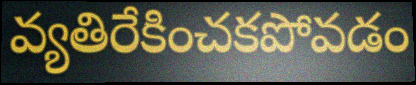
వ్యతిరేకించకపోవడం